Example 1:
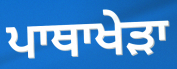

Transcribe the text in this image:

ਪਾਥਾਖੇੜਾ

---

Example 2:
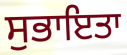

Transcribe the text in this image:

ਸੁਭਾਇਤਾ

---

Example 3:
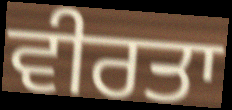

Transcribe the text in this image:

ਵੀਰਤਾ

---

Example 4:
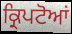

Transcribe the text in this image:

ਕ੍ਰਿਪਟੋਆਂ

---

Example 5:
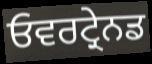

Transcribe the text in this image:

ਓਵਰਟ੍ਰੇਨਡ